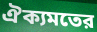
ঐক্যমতের